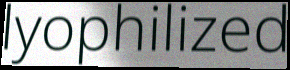
lyophilized